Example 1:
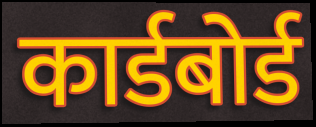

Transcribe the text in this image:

कार्डबोर्ड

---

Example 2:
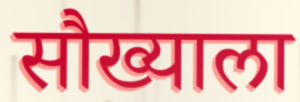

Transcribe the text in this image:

सौख्याला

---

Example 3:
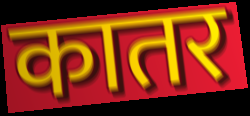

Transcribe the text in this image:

कातर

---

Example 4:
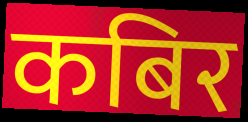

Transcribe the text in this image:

कबिर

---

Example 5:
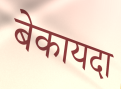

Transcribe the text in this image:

बेकायदा